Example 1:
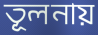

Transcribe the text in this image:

তূলনায়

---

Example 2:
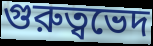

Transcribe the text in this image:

গুরুত্বভেদ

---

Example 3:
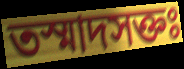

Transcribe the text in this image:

তস্মাদসক্তঃ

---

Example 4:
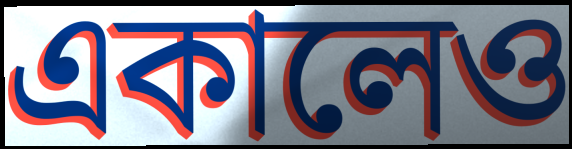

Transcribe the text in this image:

একালেও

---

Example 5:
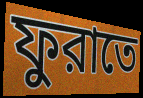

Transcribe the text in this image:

ফুরাতে